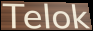
Telok